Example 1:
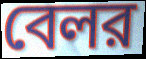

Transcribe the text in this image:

বেলর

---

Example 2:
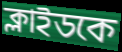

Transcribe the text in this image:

ক্লাইডকে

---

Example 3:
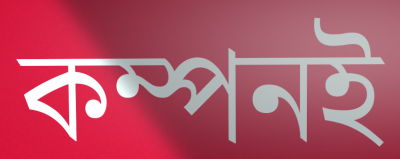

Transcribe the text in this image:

কম্পনই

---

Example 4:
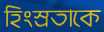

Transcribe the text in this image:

হিংস্রতাকে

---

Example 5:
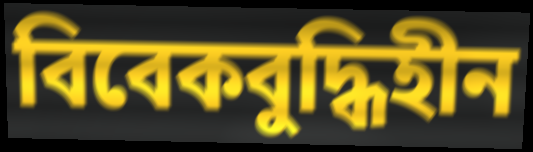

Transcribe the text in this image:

বিবেকবুদ্ধিহীন